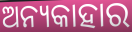
ଅନ୍ୟକାହାର